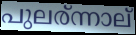
പുലര്ന്നാല്